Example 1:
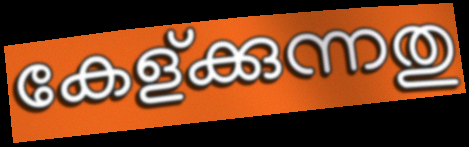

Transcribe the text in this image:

കേള്ക്കുന്നതു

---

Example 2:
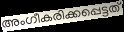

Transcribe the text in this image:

അംഗീകരിക്കപ്പെട്ടത്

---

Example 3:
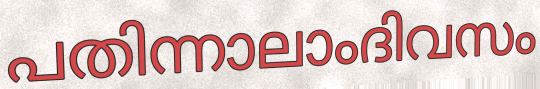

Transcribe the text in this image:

പതിന്നാലാംദിവസം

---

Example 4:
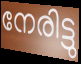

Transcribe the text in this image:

നേരിട്ടു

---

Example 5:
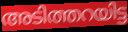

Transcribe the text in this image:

അടിത്തറയിട്ട